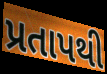
પ્રતાપથી